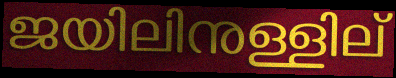
ജയിലിനുള്ളില്